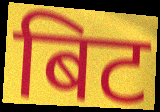
बिट